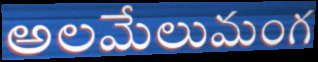
అలమేలుమంగ